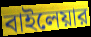
বাইলেয়ার